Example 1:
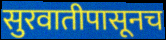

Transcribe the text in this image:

सुरवातीपासूनच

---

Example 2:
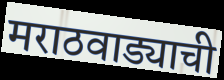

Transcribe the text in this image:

मराठवाड्याची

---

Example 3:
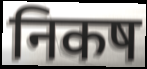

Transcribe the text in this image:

निकष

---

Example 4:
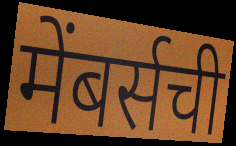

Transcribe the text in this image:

मेंबर्सची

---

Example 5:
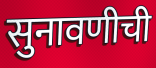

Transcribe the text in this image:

सुनावणीची